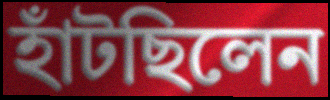
হাঁটছিলেন